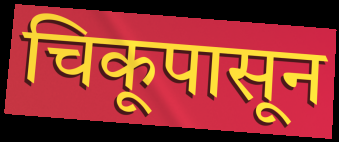
चिकूपासून